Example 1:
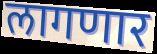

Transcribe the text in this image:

लागणार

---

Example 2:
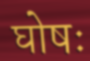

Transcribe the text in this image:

घोषः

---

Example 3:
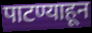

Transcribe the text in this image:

पाटण्याहून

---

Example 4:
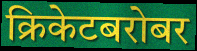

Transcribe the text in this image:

क्रिकेटबरोबर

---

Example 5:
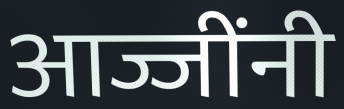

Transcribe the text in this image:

आज्जींनी